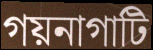
গয়নাগাটি